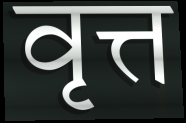
वृत्त